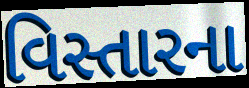
વિસ્તારના